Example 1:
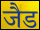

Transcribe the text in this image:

जैड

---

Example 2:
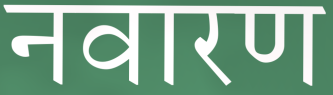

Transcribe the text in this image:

नवारण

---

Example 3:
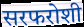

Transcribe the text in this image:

सरफरोशी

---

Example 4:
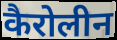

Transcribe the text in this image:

कैरोलीन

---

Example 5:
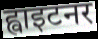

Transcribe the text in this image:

ह्वाइटनर